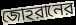
জোহরানের